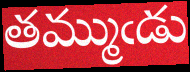
తమ్ముఁడు